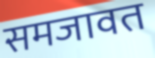
समजावत